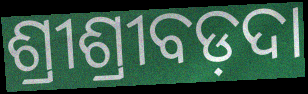
ଶ୍ରୀଶ୍ରୀବଡ଼ଦା